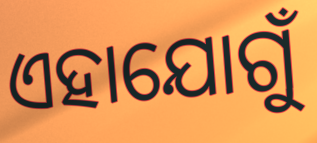
ଏହାଯୋଗୁଁ